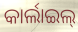
କାର୍ଲାଇଲ୍